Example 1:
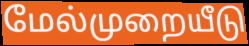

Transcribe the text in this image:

மேல்முறையீடு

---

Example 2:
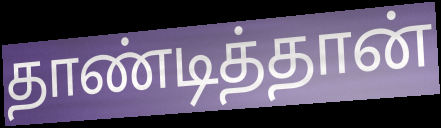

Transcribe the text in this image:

தாண்டித்தான்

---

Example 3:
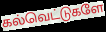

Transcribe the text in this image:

கல்வெட்டுகளே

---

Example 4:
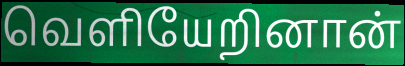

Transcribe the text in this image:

வெளியேறினான்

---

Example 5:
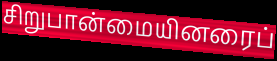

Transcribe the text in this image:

சிறுபான்மையினரைப்